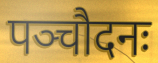
पञ्चौदनः